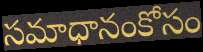
సమాధానంకోసం